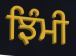
ਝਿੰਮੀ